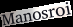
Manosroi